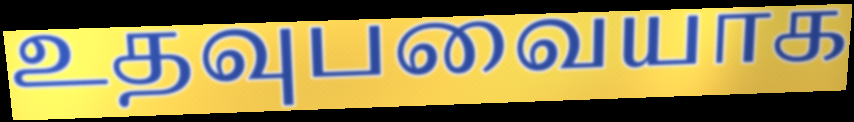
உதவுபவையாக